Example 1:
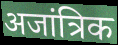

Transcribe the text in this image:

अजांत्रिक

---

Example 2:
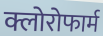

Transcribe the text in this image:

क्लोरोफार्म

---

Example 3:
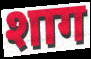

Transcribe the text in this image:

शाग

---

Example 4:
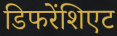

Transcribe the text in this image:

डिफरेंशिएट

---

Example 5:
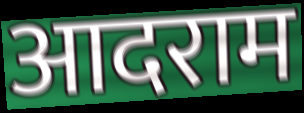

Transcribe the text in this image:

आदराम